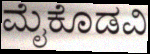
ಮೈಕೊಡವಿ